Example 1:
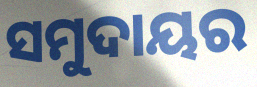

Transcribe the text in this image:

ସମୁଦାୟର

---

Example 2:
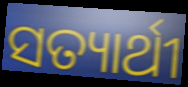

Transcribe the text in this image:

ସତ୍ୟାର୍ଥୀ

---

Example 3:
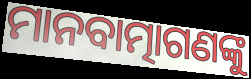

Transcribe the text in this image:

ମାନବାତ୍ମାଗଣଙ୍କୁ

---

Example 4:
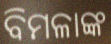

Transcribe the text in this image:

ବିମଳାଙ୍କ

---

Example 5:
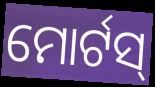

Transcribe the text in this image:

ମୋର୍ଟସ୍